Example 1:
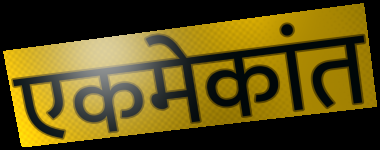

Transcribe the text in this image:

एकमेकांत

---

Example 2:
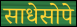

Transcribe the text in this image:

साधेसोपे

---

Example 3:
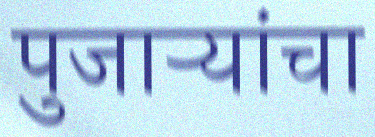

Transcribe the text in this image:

पुजाऱ्यांचा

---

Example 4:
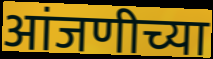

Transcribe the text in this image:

आंजणीच्या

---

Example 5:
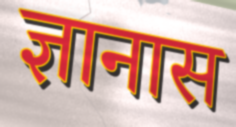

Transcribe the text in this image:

ज्ञानास